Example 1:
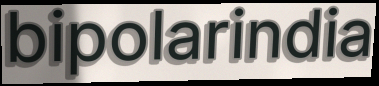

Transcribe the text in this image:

bipolarindia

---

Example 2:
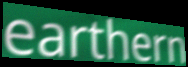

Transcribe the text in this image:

earthern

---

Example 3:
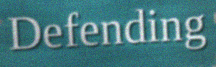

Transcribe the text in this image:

Defending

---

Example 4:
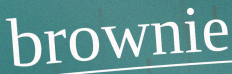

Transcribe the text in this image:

brownie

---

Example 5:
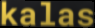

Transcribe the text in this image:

kalas